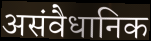
असंवैधानिक